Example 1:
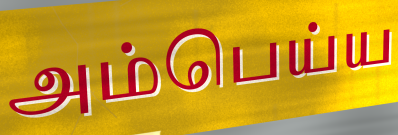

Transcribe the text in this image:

அம்பெய்ய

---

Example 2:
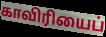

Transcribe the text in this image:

காவிரியைப்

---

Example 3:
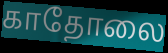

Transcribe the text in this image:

காதோலை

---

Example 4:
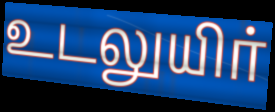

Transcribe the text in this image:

உடலுயிர்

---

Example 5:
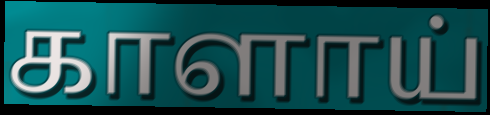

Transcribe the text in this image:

காளாய்